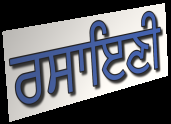
ਰਸਾਇਣੀ